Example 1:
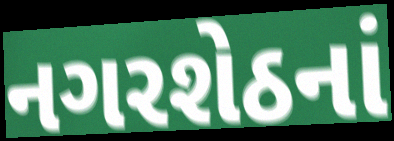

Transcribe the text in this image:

નગરશેઠનાં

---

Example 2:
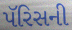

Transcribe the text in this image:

પૅરિસની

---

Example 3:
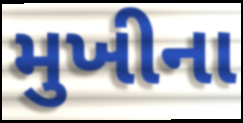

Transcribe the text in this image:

મુખીના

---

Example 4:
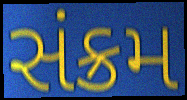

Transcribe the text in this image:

સંક્રમ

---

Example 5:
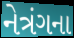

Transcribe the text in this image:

નેત્રંગના